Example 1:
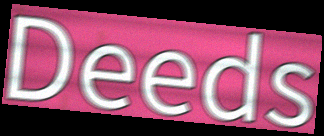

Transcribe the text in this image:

Deeds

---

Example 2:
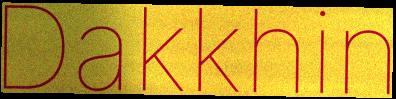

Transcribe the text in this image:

Dakkhin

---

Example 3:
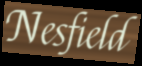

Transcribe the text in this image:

Nesfield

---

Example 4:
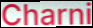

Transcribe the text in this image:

Charni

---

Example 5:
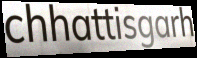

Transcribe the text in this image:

chhattisgarh